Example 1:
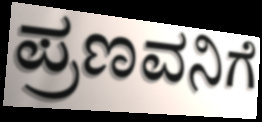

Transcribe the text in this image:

ಪ್ರಣವನಿಗೆ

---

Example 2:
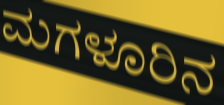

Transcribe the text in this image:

ಮಗಳೂರಿನ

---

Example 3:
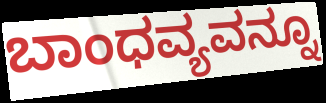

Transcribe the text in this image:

ಬಾಂಧವ್ಯವನ್ನೂ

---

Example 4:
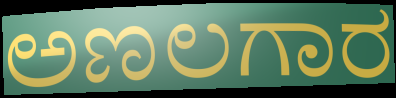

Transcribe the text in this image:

ಅಣಲಗಾರ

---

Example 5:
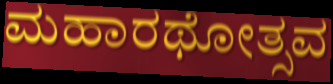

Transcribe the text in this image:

ಮಹಾರಥೋತ್ಸವ